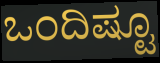
ಒಂದಿಷ್ಟೂ